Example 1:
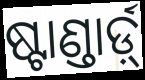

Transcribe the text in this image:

ଷ୍ଟାଣ୍ଡାର୍ଡ଼୍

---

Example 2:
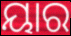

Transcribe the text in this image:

ୟାର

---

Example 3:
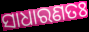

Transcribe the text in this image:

ସାଧାରଣତଃ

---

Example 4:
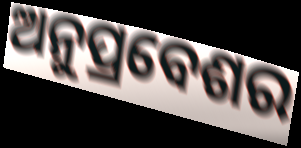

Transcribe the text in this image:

ଅନୁପ୍ରବେଶର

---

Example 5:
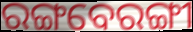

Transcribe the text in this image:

ରଙ୍ଗବେରଙ୍ଗୀ